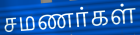
சமணர்கள்